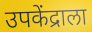
उपकेंद्राला